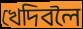
খেদিবলৈ